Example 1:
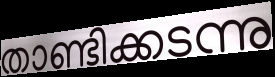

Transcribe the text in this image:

താണ്ടിക്കടന്നു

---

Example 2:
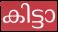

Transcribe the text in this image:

കിട്ടാ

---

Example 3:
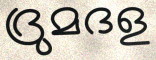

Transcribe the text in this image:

ദ്രുമദള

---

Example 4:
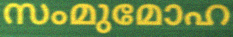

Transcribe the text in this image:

സംമുമോഹ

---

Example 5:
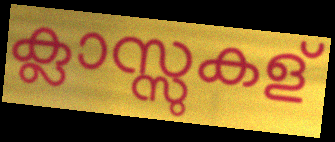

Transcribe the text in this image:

ക്ലാസ്സുകള്